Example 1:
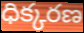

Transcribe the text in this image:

ధిక్కరణ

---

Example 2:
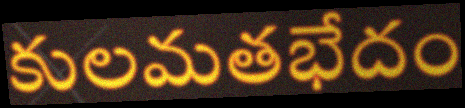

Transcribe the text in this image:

కులమతభేదం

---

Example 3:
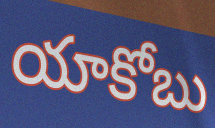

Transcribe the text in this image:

యాకోబు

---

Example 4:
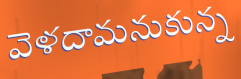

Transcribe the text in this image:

వెళదామనుకున్న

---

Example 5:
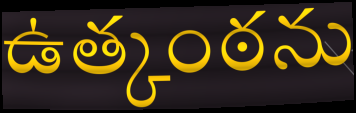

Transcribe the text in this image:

ఉత్కంఠను